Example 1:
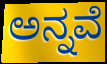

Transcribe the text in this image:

ಅನ್ನವೆ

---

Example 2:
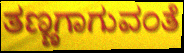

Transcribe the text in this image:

ತಣ್ಣಗಾಗುವಂತೆ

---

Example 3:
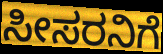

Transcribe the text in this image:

ಸೀಸರನಿಗೆ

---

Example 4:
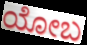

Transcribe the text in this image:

ಯೋಬ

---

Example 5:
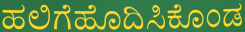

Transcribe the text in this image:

ಹಲಿಗೆಹೊದಿಸಿಕೊಂಡ